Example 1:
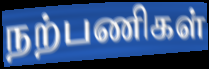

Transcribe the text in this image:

நற்பணிகள்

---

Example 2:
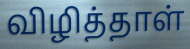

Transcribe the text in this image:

விழித்தாள்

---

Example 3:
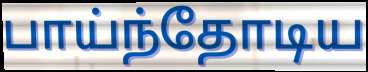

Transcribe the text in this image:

பாய்ந்தோடிய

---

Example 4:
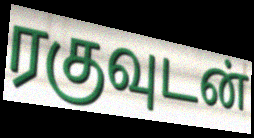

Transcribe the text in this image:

ரகுவுடன்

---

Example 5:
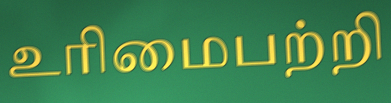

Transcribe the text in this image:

உரிமைபற்றி